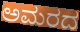
ಅಮರದ